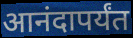
आनंदापर्यंत